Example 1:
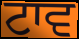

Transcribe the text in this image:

ਟਾਵ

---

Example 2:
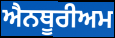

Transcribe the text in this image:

ਐਨਥੂਰੀਅਮ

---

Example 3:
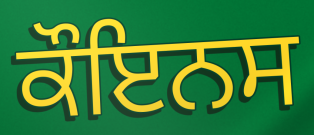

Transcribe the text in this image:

ਕੌਇਨਸ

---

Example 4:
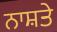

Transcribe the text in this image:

ਨਾਸ਼ਤੇ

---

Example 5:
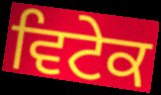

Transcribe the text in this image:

ਵਿਟੇਕ